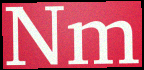
Nm